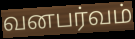
வனபர்வம்